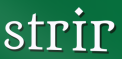
strir